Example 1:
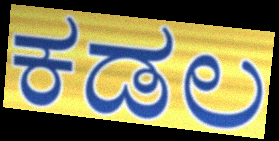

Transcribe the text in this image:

ಕಡಲ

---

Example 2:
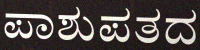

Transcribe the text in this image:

ಪಾಶುಪತದ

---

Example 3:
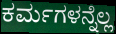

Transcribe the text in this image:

ಕರ್ಮಗಳನ್ನೆಲ್ಲ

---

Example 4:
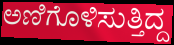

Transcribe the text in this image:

ಅಣಿಗೊಳಿಸುತ್ತಿದ್ದ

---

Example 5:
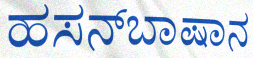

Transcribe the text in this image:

ಹಸನ್‌ಬಾಷಾನ